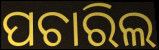
ପଚାରିଲ